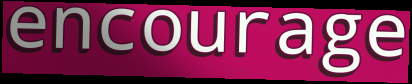
encourage